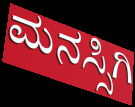
ಮನಸ್ಸಿಗಿ